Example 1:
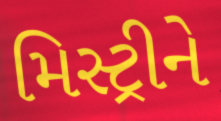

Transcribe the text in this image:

મિસ્ટ્રીને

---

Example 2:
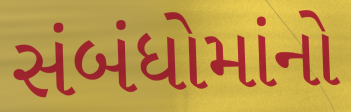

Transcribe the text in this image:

સંબંધોમાંનો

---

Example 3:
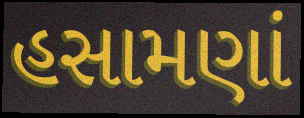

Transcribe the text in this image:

હસામણાં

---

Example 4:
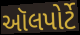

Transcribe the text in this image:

ઑલપોર્ટે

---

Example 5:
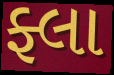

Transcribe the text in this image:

ફ્લા